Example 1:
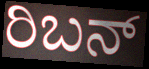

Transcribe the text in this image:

ರಿಬನ್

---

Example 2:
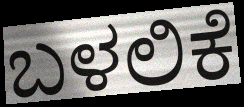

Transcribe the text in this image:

ಬಳಲಿಕೆ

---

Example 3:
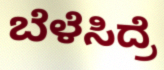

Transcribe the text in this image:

ಬೆಳೆಸಿದ್ರೆ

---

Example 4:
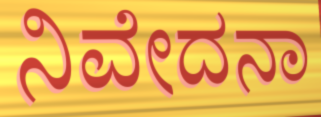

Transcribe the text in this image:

ನಿವೇದನಾ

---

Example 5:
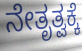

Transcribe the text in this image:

ನೇತೃತ್ವಕ್ಕೆ